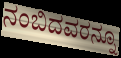
ನಂಬಿದವರನ್ನೂ